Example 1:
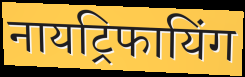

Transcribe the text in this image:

नायट्रिफायिंग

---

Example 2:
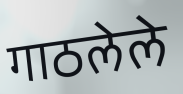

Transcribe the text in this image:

गाठलेले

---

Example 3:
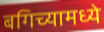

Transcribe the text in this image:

बगिच्यामध्ये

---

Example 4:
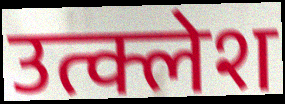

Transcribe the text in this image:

उत्क्लेश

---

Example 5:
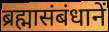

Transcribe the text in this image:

ब्रह्मासंबंधानें